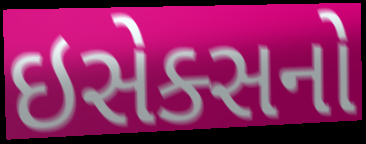
ઇસેક્સનો